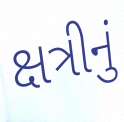
ક્ષત્રીનું